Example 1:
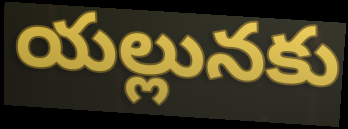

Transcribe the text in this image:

యల్లునకు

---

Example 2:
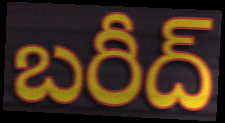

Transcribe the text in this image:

బరీద్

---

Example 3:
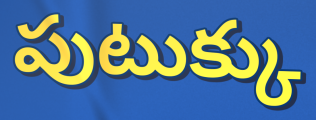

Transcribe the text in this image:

పుటుక్కు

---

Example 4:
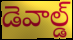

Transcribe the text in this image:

డెవాల్డ్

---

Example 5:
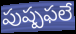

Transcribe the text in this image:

పుష్పఫలే